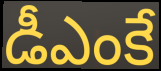
డీఎంకే